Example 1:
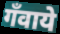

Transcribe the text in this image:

गँवाये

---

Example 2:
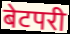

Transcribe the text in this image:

बेटपरी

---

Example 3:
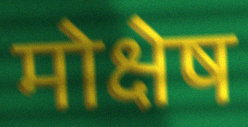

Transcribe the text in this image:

मोक्षेष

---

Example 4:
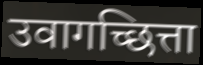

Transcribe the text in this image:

उवागच्छित्ता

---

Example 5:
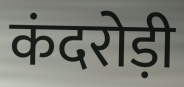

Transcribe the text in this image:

कंदरोड़ी